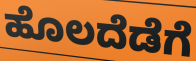
ಹೊಲದೆಡೆಗೆ